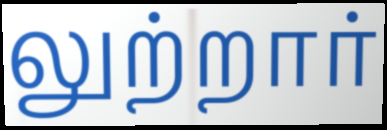
லுற்றார்